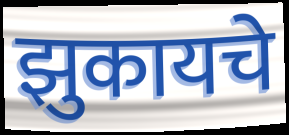
झुकायचे